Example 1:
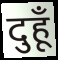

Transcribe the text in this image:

दुहूँ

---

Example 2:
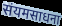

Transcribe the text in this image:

संयमसाधना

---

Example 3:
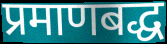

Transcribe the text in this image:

प्रमाणबद्ध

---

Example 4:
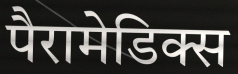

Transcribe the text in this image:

पैरामेडिक्स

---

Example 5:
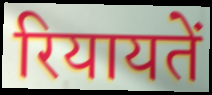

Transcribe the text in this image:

रियायतें